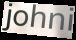
johni